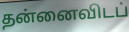
தன்னைவிடப்